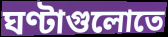
ঘণ্টাগুলোতে